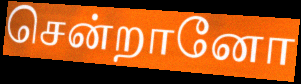
சென்றானோ